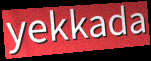
yekkada